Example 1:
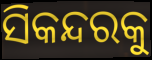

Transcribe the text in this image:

ସିକନ୍ଦରକୁ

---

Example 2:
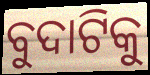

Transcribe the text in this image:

ବୁଦାଟିକୁ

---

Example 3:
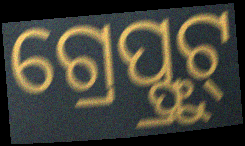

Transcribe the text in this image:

ଗ୍ରେପ୍ଫ୍ରୁଟ୍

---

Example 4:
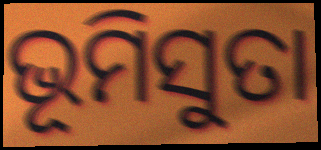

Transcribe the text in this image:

ଭୂମିସୁତା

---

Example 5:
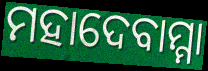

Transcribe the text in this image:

ମହାଦେବାମ୍ମା